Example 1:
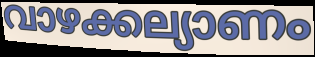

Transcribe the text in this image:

വാഴക്കല്യാണം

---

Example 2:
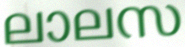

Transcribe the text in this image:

ലാലസ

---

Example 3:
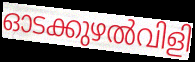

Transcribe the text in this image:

ഓടക്കുഴൽവിളി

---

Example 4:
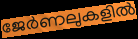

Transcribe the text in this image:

ജേർണലുകളിൽ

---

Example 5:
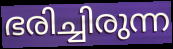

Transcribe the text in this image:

ഭരിച്ചിരുന്ന